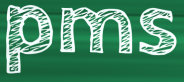
pms